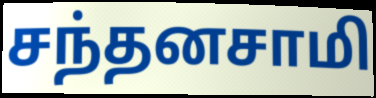
சந்தனசாமி